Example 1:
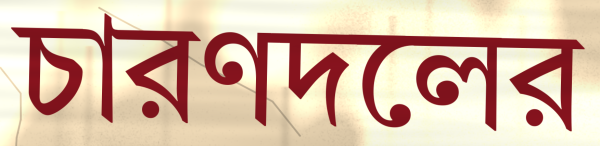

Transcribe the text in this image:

চারণদলের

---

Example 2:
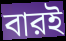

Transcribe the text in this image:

বারই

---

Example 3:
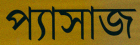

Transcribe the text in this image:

প্যাসাজ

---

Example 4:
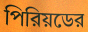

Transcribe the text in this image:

পিরিয়ডের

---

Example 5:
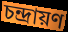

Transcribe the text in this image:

চন্দ্রায়ণ